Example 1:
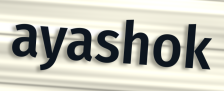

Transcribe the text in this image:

ayashok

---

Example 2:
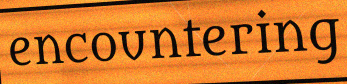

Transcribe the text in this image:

encountering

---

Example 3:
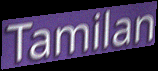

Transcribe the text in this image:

Tamilan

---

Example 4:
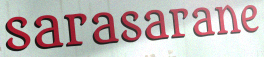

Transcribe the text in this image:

sarasarane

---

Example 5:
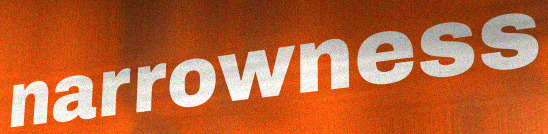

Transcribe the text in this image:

narrowness